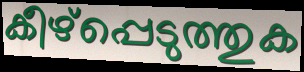
കീഴ്പ്പെടുത്തുക